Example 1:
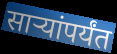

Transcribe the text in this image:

साऱ्यांपर्यंत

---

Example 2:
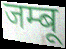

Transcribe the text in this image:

जम्बू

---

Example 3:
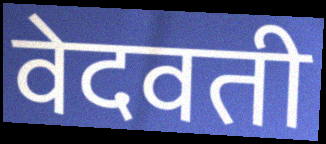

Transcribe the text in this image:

वेदवती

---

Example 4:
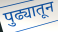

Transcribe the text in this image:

पुढ्यातून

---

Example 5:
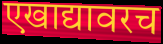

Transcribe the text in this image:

एखाद्यावरच